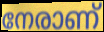
നേരാണ്